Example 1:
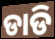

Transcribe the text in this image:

ଡାଡି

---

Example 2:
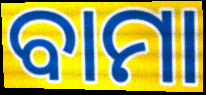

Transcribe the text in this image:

ବାମା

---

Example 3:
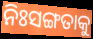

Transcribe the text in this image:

ନିଃସଙ୍ଗତାକୁ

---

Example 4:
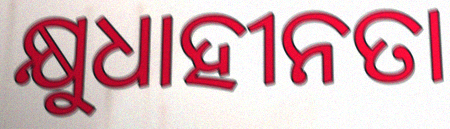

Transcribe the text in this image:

କ୍ଷୁଧାହୀନତା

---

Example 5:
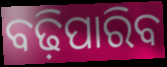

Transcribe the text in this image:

ବଢ଼ିପାରିବ